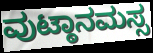
ವುಟ್ಠಾನಮಸ್ಸ